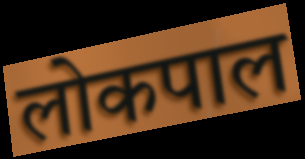
लोकपाल